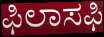
ಫಿಲಾಸಫಿ